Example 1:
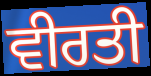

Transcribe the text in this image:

ਵੀਰਤੀ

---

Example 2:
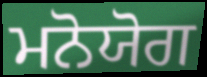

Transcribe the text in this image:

ਮਨੋਯੋਗ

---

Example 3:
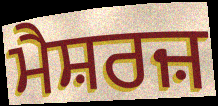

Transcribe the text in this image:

ਮੈਸ਼ਰਜ਼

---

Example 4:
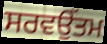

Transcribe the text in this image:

ਸਰਵਉੱਤਮ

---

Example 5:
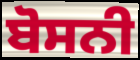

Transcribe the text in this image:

ਬੋਸਨੀ